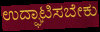
ಉದ್ಘಾಟಿಸಬೇಕು